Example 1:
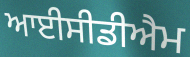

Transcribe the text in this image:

ਆਈਸੀਡੀਐਮ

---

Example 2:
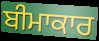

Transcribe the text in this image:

ਬੀਮਾਕਾਰ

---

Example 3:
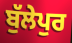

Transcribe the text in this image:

ਬੁੱਲੇਪੁਰ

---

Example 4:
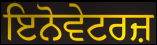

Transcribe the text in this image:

ਇਨੋਵੇਟਰਜ਼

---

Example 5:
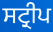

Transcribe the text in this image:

ਸਟ੍ਰੀਪ